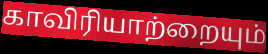
காவிரியாற்றையும்